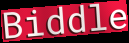
Biddle